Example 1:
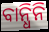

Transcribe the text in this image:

ବାନ୍ଧିନି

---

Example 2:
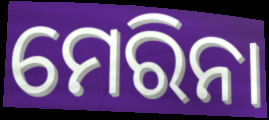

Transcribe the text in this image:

ମେରିନା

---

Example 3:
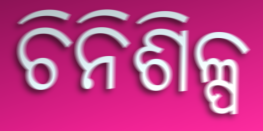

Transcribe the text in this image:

ଚିନିଶିଳ୍ପ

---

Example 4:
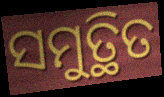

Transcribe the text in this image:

ସମୁତ୍ଥିତ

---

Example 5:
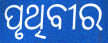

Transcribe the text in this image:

ପୃଥିବୀର